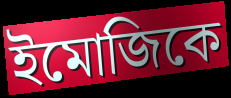
ইমোজিকে